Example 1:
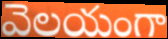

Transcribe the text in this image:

వెలయంగా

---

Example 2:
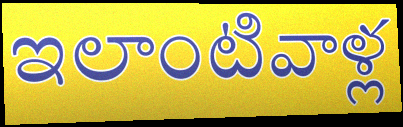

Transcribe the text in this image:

ఇలాంటివాళ్ల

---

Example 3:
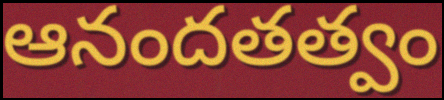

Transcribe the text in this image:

ఆనందతత్వం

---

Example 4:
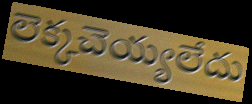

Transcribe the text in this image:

లెక్కచెయ్యలేదు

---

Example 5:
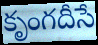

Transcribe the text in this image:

కృంగదీసే